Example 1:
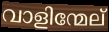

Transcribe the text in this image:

വാളിന്മേല്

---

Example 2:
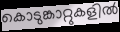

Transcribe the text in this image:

കൊടുങ്കാറ്റുകളിൽ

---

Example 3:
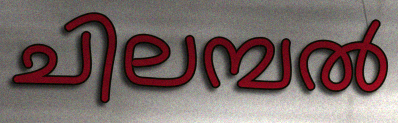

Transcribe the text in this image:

ചിലമ്പൽ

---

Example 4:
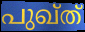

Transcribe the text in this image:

പുഖ്ത്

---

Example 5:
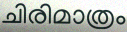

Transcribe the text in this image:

ചിരിമാത്രം